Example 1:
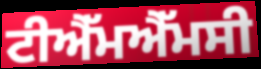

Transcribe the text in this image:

ਟੀਐੱਮਐੱਮਸੀ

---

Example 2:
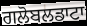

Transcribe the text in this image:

ਗਲੋਬਲਡਾਟਾ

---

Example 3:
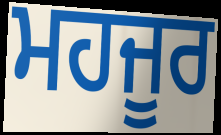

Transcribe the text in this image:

ਮਹਜੂਰ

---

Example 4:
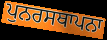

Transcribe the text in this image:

ਪੁਨਰਸਥਾਪਨਾ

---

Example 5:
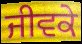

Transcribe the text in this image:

ਜੀਵਕੇ